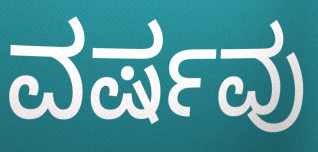
ವರ್ಷವು